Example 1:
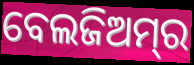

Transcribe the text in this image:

ବେଲଜିଅମ୍‌ର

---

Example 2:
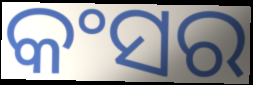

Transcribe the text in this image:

କଂସର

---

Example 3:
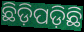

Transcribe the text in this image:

ଛିଡ଼ିପଡ଼ିଛି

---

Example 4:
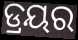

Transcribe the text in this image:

ଡ୍ରୟର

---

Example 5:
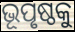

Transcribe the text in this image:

ଭୂପୃଷ୍ଠକୁ